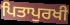
ਪਿਤਾਪੁਰਖੀ